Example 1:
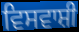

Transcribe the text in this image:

ਵਿਸਵਾਸ਼ੀ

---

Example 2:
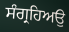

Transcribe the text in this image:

ਸੰਗ੍ਰਹਿਅਉ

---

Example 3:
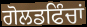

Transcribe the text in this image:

ਗੋਲਡਫਿੰਚਾਂ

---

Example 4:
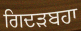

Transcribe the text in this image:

ਗਿਦੜਬਹਾ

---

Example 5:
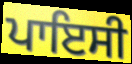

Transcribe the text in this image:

ਪਾਇਸੀ